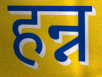
हन्न